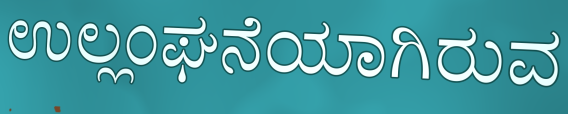
ಉಲ್ಲಂಘನೆಯಾಗಿರುವ